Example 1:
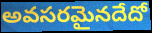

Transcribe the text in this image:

అవసరమైనదేదో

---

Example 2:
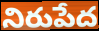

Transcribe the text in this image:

నిరుపేద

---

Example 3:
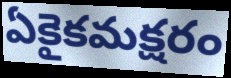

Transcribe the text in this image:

ఏకైకమక్షరం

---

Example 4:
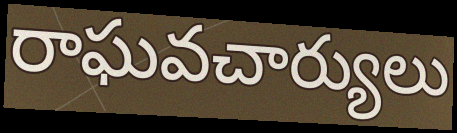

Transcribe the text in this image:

రాఘవచార్యులు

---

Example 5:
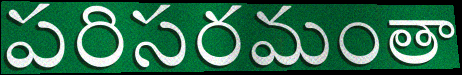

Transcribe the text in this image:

పరిసరమంతా